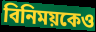
বিনিময়কেও